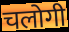
चलोगी